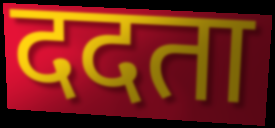
ददता